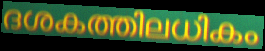
ദശകത്തിലധികം